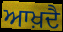
ਆਖ਼ਦੈ